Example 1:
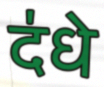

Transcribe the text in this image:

द॑धे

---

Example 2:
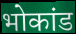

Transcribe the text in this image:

भोकांड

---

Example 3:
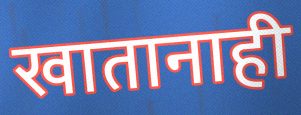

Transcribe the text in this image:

खातानाही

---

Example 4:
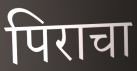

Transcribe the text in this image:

पिराचा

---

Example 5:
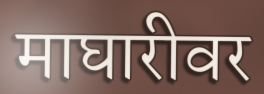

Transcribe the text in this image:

माघारीवर